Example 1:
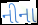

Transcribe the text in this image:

નીના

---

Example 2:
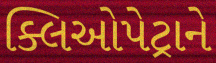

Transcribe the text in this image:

ક્લિઓપેટ્રાને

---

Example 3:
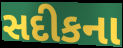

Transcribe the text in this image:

સદીકના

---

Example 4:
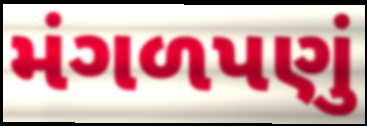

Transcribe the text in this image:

મંગળપણું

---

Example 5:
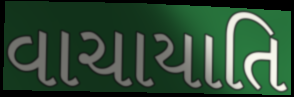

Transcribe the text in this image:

વાચાયાતિ